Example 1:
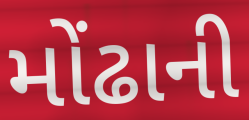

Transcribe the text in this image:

મોંઢાની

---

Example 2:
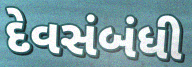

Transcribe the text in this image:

દેવસંબંધી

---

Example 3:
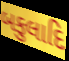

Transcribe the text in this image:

બકુલાદિ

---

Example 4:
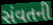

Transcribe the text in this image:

સંવતની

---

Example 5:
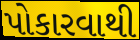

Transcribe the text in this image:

પોકારવાથી